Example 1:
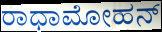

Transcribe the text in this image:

ರಾಧಾಮೋಹನ್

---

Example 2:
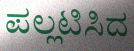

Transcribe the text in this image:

ಪಲ್ಲಟಿಸಿದ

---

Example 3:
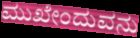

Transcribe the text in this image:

ಮುಖೇಂದುವನು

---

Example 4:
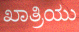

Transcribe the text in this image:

ಖಾತ್ರಿಯು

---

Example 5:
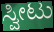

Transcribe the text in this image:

ಸ್ವೀಟು